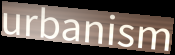
urbanism